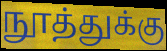
நூத்துக்கு